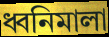
ধ্বনিমালা